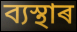
ব্যস্থাৰ